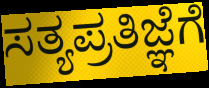
ಸತ್ಯಪ್ರತಿಜ್ಞೆಗೆ